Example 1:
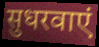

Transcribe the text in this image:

सुधरवाएं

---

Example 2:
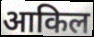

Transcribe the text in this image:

आकिल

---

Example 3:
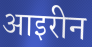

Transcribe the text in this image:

आइरीन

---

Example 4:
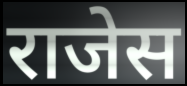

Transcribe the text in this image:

राजेस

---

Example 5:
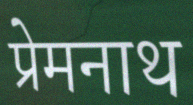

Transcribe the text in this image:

प्रेमनाथ